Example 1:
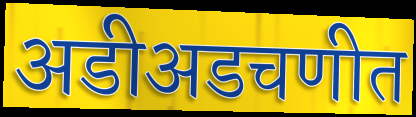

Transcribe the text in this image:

अडीअडचणीत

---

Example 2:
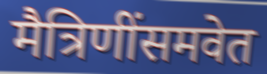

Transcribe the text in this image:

मैत्रिणींसमवेत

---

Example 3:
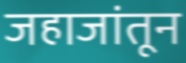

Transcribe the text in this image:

जहाजांतून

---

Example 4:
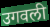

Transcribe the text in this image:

उगवली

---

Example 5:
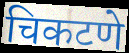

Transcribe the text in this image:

चिकटणे